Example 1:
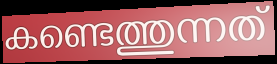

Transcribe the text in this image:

കണ്ടെത്തുന്നത്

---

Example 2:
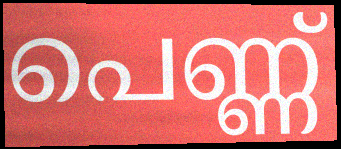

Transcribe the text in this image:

പെണ്ണ്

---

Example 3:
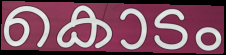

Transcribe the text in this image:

കൊടം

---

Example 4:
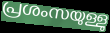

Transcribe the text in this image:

പ്രശംസയുള്ളു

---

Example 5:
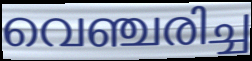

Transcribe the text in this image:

വെഞ്ചരിച്ച